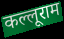
कल्लूराम